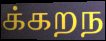
க்கறந